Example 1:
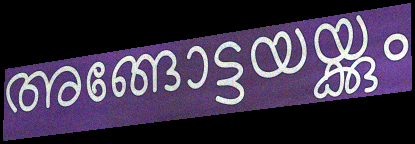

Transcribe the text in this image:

അങ്ങോട്ടയയ്ക്കും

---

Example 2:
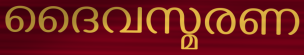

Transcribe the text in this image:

ദൈവസ്മരണ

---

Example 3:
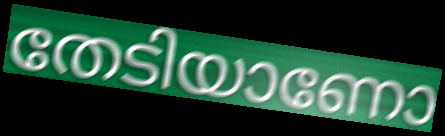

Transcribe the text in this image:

തേടിയാണോ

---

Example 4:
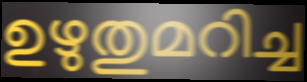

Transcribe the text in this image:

ഉഴുതുമറിച്ച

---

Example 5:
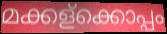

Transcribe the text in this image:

മക്കള്ക്കൊപ്പം